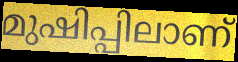
മുഷിപ്പിലാണ്